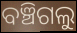
ବଞ୍ଚିଗଲୁ